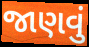
જાણવું